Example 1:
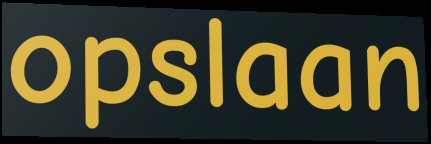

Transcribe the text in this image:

opslaan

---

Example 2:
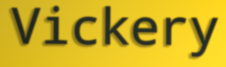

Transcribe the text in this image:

Vickery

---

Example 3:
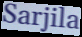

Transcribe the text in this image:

Sarjila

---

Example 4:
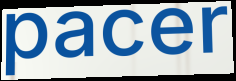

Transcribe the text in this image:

pacer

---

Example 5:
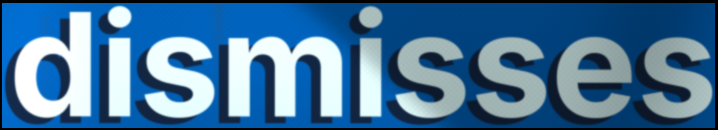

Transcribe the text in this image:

dismisses